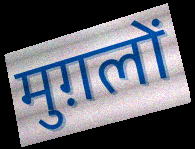
मुग़लों